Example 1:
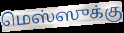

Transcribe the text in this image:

மெஸ்ஸுக்கு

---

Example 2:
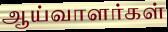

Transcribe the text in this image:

ஆய்வாளர்கள்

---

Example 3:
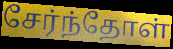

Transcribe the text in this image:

சேர்ந்தோள்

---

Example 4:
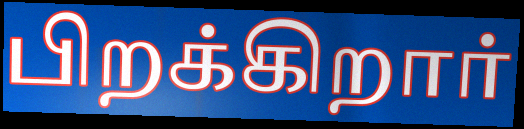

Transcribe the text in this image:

பிறக்கிறார்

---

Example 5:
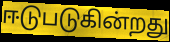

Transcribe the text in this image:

ஈடுபடுகின்றது